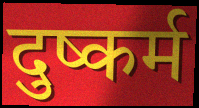
दुष्कर्म